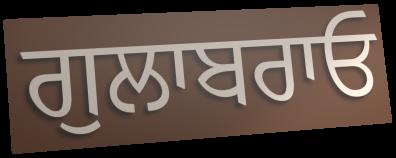
ਗੁਲਾਬਰਾਓ